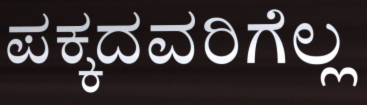
ಪಕ್ಕದವರಿಗೆಲ್ಲ